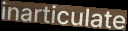
inarticulate